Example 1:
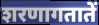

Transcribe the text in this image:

शरणागतातें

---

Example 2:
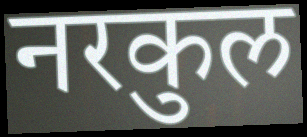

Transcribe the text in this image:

नरकुल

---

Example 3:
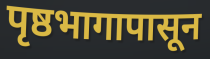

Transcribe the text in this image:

पृष्ठभागापासून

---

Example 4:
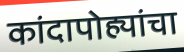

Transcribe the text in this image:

कांदापोह्यांचा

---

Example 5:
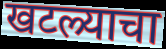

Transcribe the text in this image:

खटल्याचा